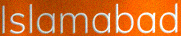
Islamabad